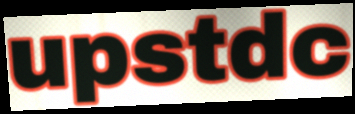
upstdc